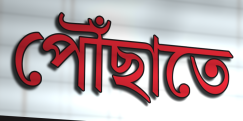
পৌঁছাতে